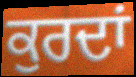
ਕੁਰਦਾਂ